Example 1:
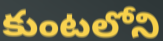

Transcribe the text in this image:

కుంటలోని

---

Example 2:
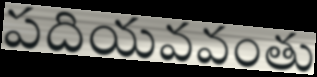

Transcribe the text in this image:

పదియవవంతు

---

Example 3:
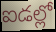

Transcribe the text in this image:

ఐడల్లో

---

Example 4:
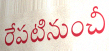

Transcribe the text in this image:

రేపటినుంచీ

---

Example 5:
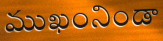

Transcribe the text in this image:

ముఖంనిండా